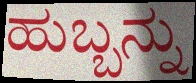
ಹುಬ್ಬನ್ನು